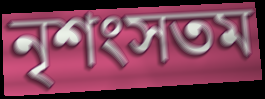
নৃশংসতম